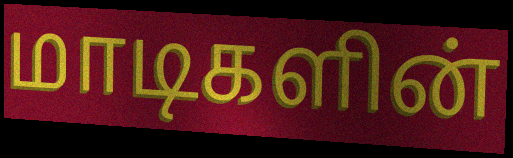
மாடிகளின்